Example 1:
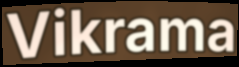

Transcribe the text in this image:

Vikrama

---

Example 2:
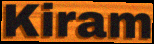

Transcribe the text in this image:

Kiram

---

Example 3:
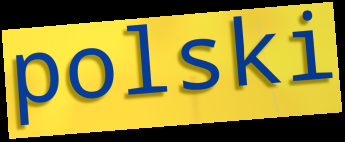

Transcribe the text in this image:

polski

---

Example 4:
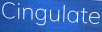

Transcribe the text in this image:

Cingulate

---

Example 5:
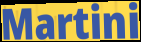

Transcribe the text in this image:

Martini